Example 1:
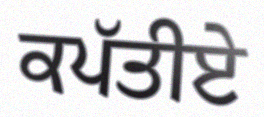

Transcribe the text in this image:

ਕਪੱਤੀਏ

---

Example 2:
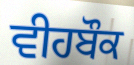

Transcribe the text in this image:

ਵੀਹਬੌਕ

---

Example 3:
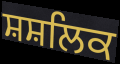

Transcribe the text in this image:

ਸ਼ਸ਼ਲਿਕ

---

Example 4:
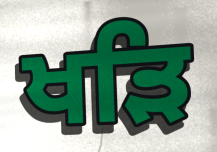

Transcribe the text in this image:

ਖੜਿ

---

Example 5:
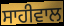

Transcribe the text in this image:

ਸਾਹੀਵਾਲ